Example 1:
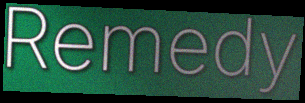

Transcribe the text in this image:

Remedy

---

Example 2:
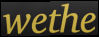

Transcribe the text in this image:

wethe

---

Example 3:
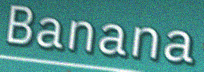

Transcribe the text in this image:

Banana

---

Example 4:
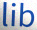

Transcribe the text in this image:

lib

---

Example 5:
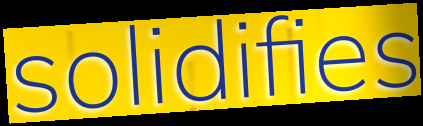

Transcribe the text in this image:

solidifies